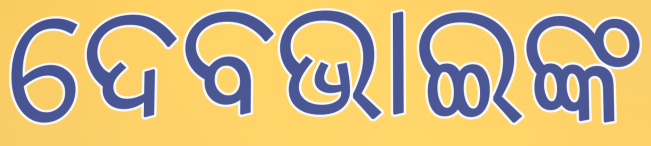
ଦେବଭାଇଙ୍କ